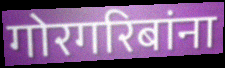
गोरगरिबांना